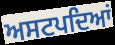
ਅਸਟਪਦਿਆਂ